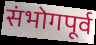
संभोगपूर्व